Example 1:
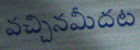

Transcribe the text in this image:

వచ్చినమీదట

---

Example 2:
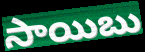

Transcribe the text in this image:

సాయిబు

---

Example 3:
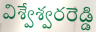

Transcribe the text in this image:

విశ్వేశ్వరరెడ్డి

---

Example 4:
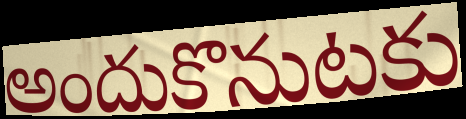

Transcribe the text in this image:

అందుకొనుటకు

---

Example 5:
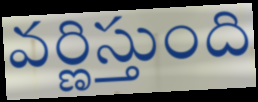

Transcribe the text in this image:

వర్ణిస్తుంది